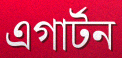
এগার্টন